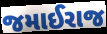
જમાઈરાજ